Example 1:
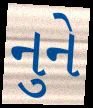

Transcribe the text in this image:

નુને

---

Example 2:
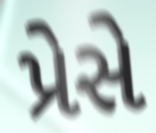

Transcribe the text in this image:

પ્રેસે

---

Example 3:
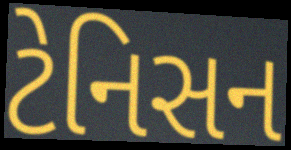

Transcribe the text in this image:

ટેનિસન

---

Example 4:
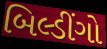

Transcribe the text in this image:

બિલ્ડીંગો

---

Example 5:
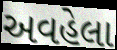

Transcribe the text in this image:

અવહેલા